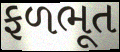
ફળભૂત